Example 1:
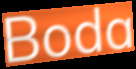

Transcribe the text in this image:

Boda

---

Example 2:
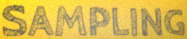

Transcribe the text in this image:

SAMPLING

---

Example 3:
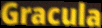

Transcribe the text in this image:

Gracula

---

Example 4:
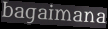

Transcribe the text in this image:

bagaimana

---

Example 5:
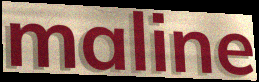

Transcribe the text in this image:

maline